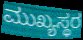
ಮುಖ್ಯಸ್ಥರ